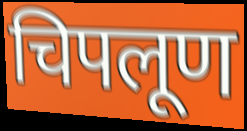
चिपलूण